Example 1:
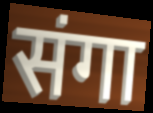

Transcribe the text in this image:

संगा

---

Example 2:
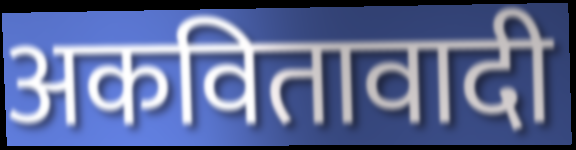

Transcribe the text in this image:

अकवितावादी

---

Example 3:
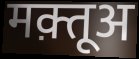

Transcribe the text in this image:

मक़्तूअ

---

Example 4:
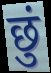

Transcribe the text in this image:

छुं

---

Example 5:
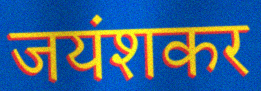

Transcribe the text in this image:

जयंशकर